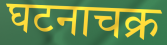
घटनाचक्र